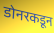
डोनरकडून